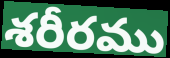
శరీరము